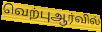
வெற்புஆர்வில்